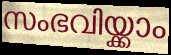
സംഭവിയ്ക്കാം